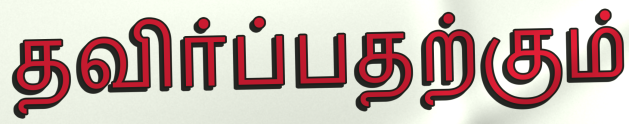
தவிர்ப்பதற்கும்